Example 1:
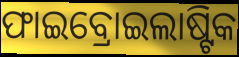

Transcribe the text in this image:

ଫାଇବ୍ରୋଇଲାଷ୍ଟିକ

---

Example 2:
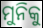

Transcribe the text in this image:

ମୁନିକୁ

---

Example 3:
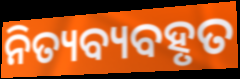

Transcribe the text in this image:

ନିତ୍ୟବ୍ୟବହୃତ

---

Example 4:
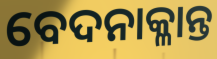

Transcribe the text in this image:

ବେଦନାକ୍ଳାନ୍ତ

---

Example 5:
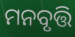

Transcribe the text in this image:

ମନବୃତ୍ତି